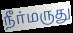
நீர்மருது